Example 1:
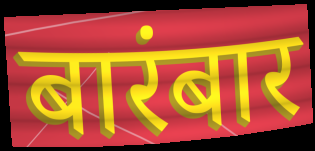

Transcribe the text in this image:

बारंबार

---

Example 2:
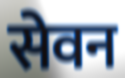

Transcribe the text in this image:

सेवन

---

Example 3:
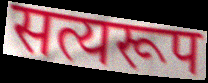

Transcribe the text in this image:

सत्यरूप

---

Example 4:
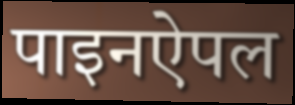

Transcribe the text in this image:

पाइनऐपल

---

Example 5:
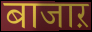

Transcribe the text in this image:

बाजाऱ